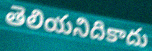
తెలియనిదికాదు